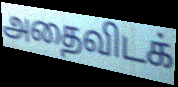
அதைவிடக்